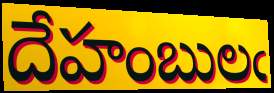
దేహంబులఁ